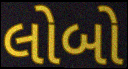
લોબો